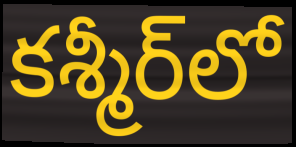
కశ్మీర్‌లో